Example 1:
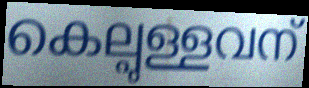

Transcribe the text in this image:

കെല്പുള്ളവന്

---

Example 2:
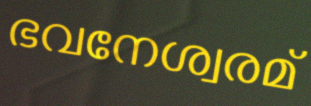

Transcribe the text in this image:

ഭവനേശ്വരമ്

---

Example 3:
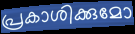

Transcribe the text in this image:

പ്രകാശിക്കുമോ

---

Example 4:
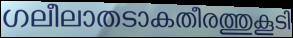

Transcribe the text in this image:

ഗലീലാതടാകതീരത്തുകൂടി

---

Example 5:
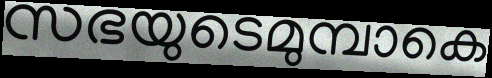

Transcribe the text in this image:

സഭയുടെമുമ്പാകെ